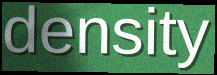
density